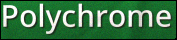
Polychrome